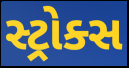
સ્ટ્રોક્સ